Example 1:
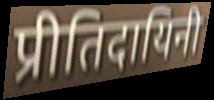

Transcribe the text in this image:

प्रीतिदायिनी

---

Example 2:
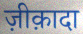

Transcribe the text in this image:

ज़ीक़ादा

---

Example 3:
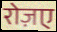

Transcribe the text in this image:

रोज़ए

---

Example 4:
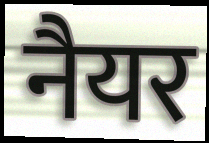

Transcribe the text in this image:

नैयर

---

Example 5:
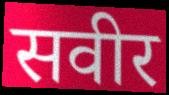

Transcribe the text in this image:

सवीर